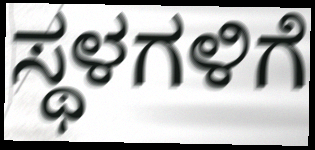
ಸ್ಥಳಗಳಿಗೆ